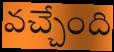
వచ్చేంది